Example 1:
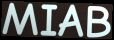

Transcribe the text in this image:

MIAB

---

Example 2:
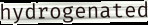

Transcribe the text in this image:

hydrogenated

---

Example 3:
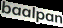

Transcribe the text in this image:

baalpan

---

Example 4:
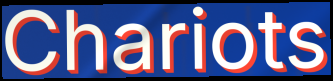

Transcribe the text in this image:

Chariots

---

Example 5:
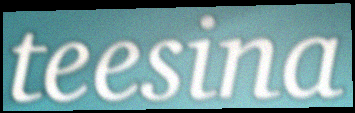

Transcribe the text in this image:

teesina